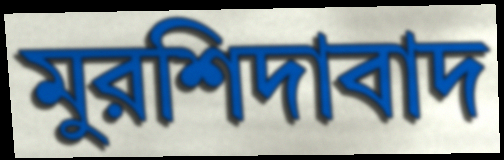
মুরশিদাবাদ